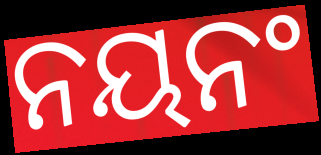
ନୟନଂ